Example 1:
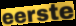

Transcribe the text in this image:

eerste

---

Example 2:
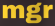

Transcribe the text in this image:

mgr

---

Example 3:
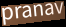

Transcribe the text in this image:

pranav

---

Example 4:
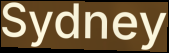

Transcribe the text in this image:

Sydney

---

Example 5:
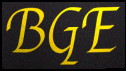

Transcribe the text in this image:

BGE